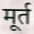
मूर्त